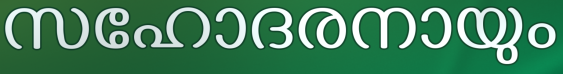
സഹോദരനായും